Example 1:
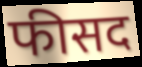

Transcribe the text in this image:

फीसद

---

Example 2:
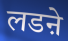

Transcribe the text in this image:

लडऩे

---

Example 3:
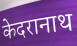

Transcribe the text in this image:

केदरानाथ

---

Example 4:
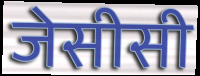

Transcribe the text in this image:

जेसीसी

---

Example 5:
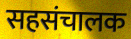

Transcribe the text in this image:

सहसंचालक